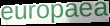
europaea